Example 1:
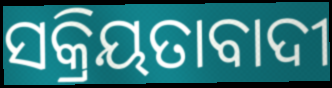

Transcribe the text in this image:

ସକ୍ରିୟତାବାଦୀ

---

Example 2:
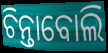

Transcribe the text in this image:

ଚିନ୍ତାବୋଲି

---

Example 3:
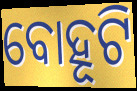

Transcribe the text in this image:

ବୋହୂଟି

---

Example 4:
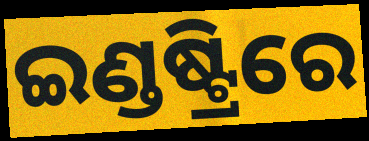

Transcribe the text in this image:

ଇଣ୍ଡଷ୍ଟ୍ରିରେ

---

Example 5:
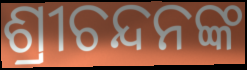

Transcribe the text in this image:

ଶ୍ରୀଚନ୍ଦନଙ୍କ